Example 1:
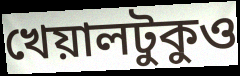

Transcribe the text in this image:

খেয়ালটুকুও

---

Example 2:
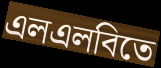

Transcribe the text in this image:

এলএলবিতে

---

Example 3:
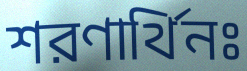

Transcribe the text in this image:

শরণার্থিনঃ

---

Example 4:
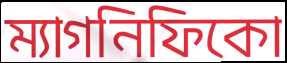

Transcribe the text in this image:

ম্যাগনিফিকো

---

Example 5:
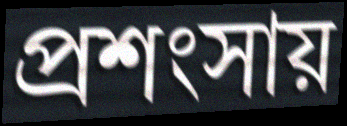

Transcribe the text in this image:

প্রশংসায়